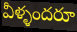
వీళ్ళందరూ